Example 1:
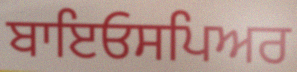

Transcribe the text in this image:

ਬਾਇਓਸਪਿਅਰ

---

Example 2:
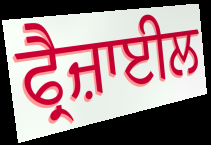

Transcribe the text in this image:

ਫ੍ਰੈਜ਼ਾਈਲ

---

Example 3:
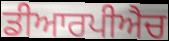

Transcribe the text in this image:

ਡੀਆਰਪੀਐਚ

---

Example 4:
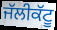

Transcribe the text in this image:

ਜੱਲੀਕੱਟੂ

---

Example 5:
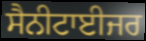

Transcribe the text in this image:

ਸੈਨੀਟਾਈਜਰ